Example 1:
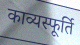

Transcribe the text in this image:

काव्यस्फूर्ति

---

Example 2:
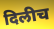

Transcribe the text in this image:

दिलीच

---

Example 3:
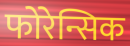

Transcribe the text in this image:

फोरेन्सिक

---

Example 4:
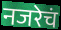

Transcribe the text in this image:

नजरेचं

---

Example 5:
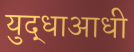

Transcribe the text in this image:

युद्धाआधी